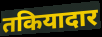
तकियादार